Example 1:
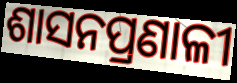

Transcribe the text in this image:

ଶାସନପ୍ରଣାଳୀ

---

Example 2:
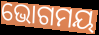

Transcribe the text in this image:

ଭୋଗମୟ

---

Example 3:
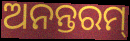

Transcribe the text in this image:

ଅନନ୍ତରମ୍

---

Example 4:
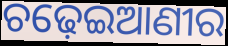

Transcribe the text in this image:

ଚଢ଼େଇଆଣୀର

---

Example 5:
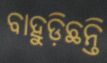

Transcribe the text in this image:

ବାହୁଡ଼ିଛନ୍ତି